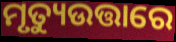
ମୃତ୍ୟୁଉତ୍ତାରେ